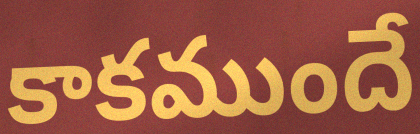
కాకముందే